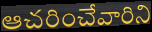
ఆచరించేవారిని